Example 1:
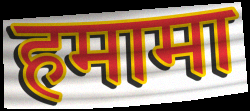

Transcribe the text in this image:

हमामा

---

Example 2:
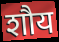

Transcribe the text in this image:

शौय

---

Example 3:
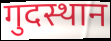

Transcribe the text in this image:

गुदस्थान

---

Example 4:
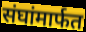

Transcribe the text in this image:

संघांमार्फत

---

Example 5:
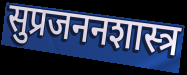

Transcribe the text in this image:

सुप्रजननशास्त्र